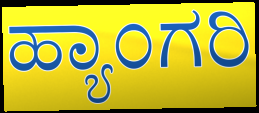
ಹ್ಯಾಂಗರಿ